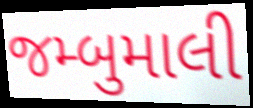
જમ્બુમાલી